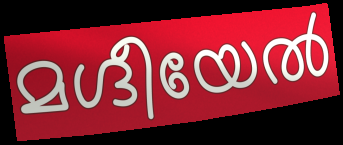
മഗ്ദീയേൽ